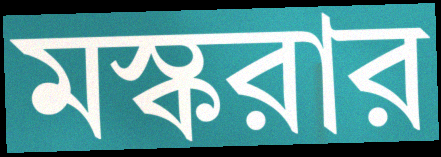
মস্করার